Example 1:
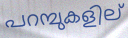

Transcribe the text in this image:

പറമ്പുകളില്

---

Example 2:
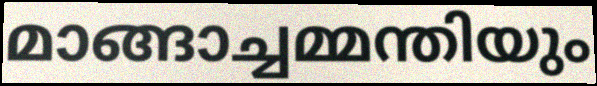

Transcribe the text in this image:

മാങ്ങാച്ചമ്മന്തിയും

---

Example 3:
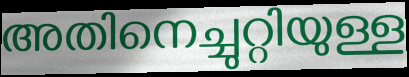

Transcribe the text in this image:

അതിനെച്ചുറ്റിയുള്ള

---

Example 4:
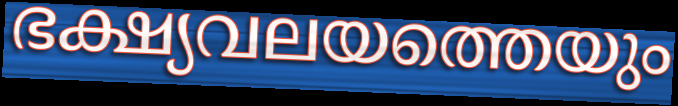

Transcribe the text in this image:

ഭക്ഷ്യവലയത്തെയും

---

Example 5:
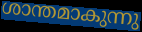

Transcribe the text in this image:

ശാന്തമാകുന്നു